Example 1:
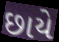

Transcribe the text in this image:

છાયે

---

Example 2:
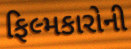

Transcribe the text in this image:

ફિલ્મકારોની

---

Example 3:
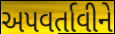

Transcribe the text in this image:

અપવર્તાવીને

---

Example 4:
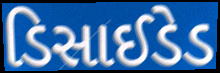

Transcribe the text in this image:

ડિસાઈડેડ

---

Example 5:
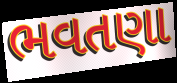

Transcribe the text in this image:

ભવતણા